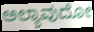
ಅಲ್ಯಾವುದೋ